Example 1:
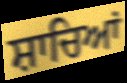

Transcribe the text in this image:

ਸ਼ਾਚਿਆਂ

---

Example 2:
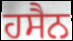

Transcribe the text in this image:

ਹਸੈਨ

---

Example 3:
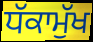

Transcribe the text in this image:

ਧੱਕਾਮੁੱਖ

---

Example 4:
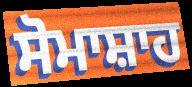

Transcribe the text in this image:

ਸੋਮਾਸ਼ਾਹ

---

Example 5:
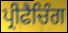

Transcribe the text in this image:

ਪ੍ਰੀਫੈਚਿੰਗ